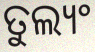
ତୁଲ୍ୟଂ